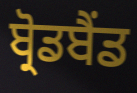
ਬ੍ਰੋਡਬੈਂਡ